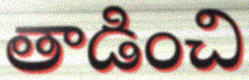
తాడించి